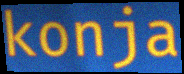
konja